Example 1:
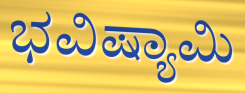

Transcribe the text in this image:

ಭವಿಷ್ಯಾಮಿ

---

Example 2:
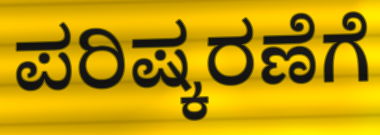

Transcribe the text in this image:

ಪರಿಷ್ಕರಣೆಗೆ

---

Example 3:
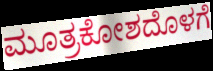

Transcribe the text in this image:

ಮೂತ್ರಕೋಶದೊಳಗೆ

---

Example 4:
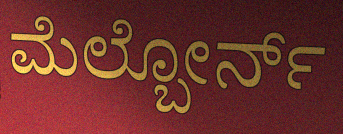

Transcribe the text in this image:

ಮೆಲ್ಬೋರ್ನ್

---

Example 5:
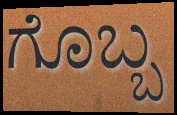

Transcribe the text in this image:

ಗೊಬ್ಬ